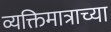
व्यक्तिमात्राच्या